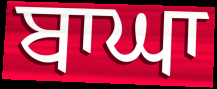
ਬਾਘਾ